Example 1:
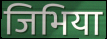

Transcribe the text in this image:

जिभिया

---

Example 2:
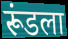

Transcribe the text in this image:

रूंडला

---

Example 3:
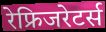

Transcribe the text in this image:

रेफ्रिजरेटर्स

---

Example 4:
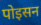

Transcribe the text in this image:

पोइसन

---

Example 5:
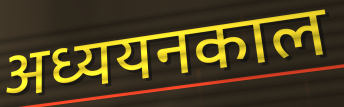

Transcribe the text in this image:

अध्ययनकाल